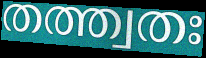
തത്ത്വതഃ